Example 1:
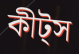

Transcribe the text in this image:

কীট্স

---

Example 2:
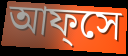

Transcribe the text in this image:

আফ্সে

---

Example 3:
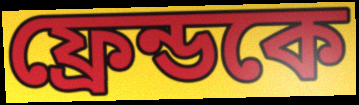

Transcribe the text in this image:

ফ্রেন্ডকে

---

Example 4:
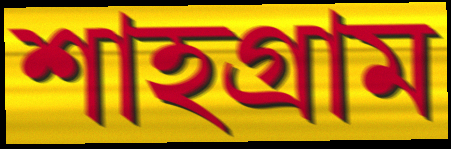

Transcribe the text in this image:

শাহগ্রাম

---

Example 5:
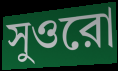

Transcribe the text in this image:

সুওরো